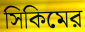
সিকিমের